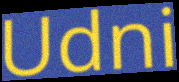
Udni